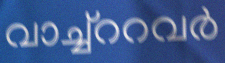
വാച്ച്ററവർ